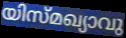
യിസ്മഖ്യാവു